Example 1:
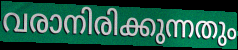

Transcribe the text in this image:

വരാനിരിക്കുന്നതും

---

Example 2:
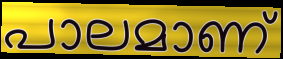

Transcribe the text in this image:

പാലമാണ്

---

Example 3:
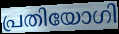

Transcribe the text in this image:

പ്രതിയോഗി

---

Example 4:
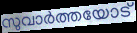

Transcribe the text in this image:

സുവാർത്തയോട്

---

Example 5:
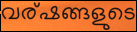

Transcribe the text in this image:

വര്ഷങ്ങളുടെ